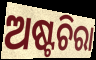
ଅଷ୍ଟଚିରା